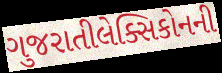
ગુજરાતીલેક્સિકોનની